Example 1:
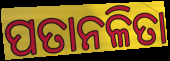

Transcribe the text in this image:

ପତାନଳିତା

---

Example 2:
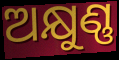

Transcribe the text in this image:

ଅକ୍ଷୁଣ୍ଣ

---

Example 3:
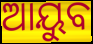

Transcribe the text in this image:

ଆୟୁବ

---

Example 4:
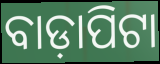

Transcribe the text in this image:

ବାଡ଼ାପିଟା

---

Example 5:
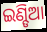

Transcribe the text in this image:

ଇଣ୍ଡିଆ